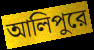
আলিপুরে